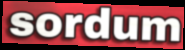
sordum